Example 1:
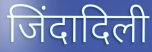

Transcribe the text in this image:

जिंदादिली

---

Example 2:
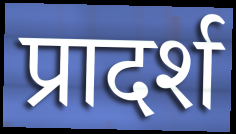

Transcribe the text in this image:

प्रादर्श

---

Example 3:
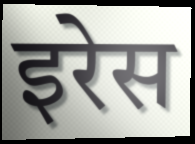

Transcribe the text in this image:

इरेस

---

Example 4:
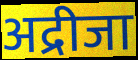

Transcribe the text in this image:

अद्रीजा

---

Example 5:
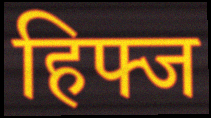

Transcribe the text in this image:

हिफ्ज